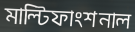
মাল্টিফাংশনাল